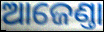
ଆଜେଣ୍ତା